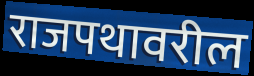
राजपथावरील